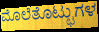
ಮೊಲೆತೊಟ್ಟುಗಳ